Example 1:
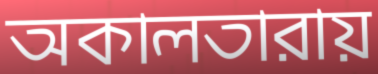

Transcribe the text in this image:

অকালতারায়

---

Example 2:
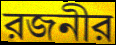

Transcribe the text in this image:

রজনীর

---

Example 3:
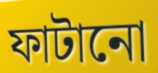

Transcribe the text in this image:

ফাটানো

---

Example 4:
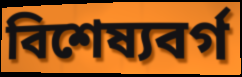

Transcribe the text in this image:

বিশেষ্যবর্গ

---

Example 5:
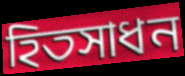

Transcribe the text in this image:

হিতসাধন